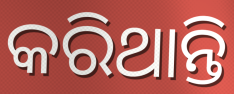
କରିଥାନ୍ତି